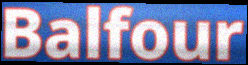
Balfour